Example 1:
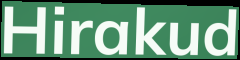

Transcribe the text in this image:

Hirakud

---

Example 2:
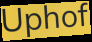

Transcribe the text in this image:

Uphof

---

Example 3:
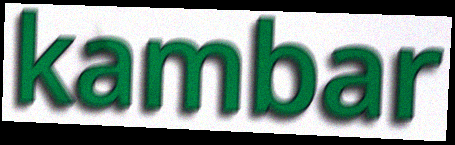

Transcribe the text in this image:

kambar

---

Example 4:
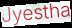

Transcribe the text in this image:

Jyestha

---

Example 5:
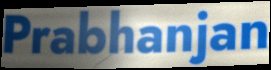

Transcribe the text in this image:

Prabhanjan